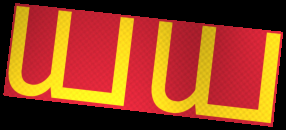
யய